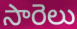
సారెలు